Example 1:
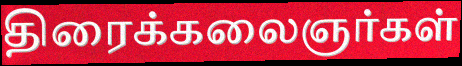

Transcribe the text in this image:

திரைக்கலைஞர்கள்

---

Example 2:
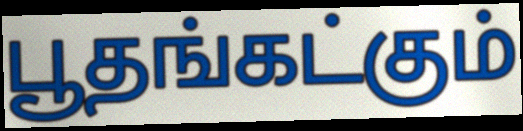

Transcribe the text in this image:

பூதங்கட்கும்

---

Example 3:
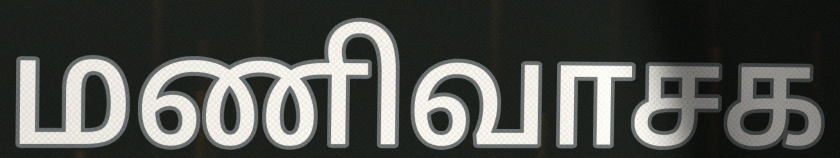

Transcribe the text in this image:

மணிவாசக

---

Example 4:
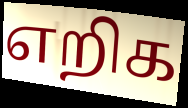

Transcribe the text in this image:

எறிக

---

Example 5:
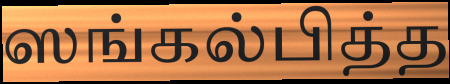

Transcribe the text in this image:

ஸங்கல்பித்த